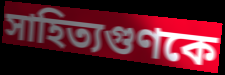
সাহিত্যগুণকে